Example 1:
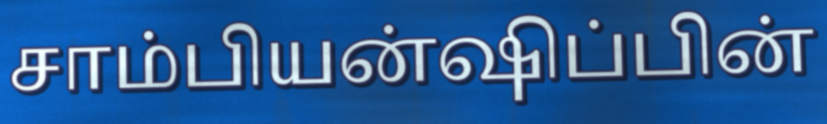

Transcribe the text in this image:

சாம்பியன்ஷிப்பின்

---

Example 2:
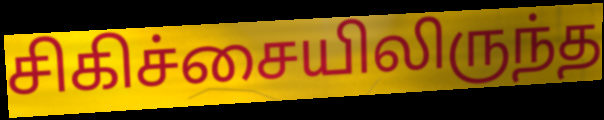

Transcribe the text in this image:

சிகிச்சையிலிருந்த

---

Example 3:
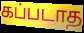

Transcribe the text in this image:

கப்படாத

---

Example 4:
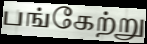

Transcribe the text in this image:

பங்கேற்று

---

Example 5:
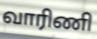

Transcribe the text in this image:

வாரிணி